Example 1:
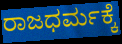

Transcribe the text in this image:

ರಾಜಧರ್ಮಕ್ಕೆ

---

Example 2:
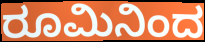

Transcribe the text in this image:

ರೂಮಿನಿಂದ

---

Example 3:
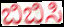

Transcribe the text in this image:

ಬಿಬಿಸಿ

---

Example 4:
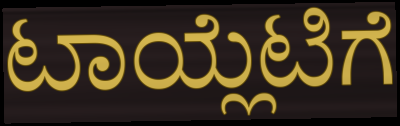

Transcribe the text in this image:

ಟಾಯ್ಲೆಟಿಗೆ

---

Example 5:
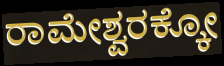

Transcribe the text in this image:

ರಾಮೇಶ್ವರಕ್ಕೋ